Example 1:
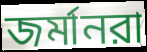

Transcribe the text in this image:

জর্মানরা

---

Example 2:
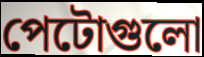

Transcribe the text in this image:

পেটোগুলো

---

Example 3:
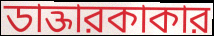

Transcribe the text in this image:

ডাক্তারকাকার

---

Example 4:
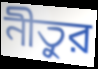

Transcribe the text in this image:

নীতুর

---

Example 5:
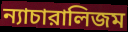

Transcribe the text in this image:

ন্যাচারালিজম